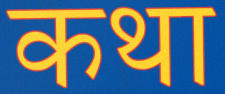
कथा